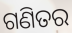
ଗଣିତର